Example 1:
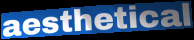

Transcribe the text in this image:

aesthetical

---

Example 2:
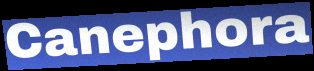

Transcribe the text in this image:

Canephora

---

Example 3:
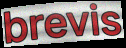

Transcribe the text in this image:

brevis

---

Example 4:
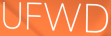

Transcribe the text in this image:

UFWD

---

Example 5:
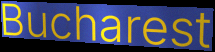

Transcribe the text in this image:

Bucharest